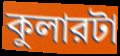
কুলারটা